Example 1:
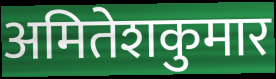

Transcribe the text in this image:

अमितेशकुमार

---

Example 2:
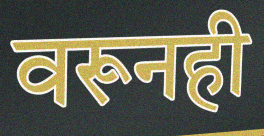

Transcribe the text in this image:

वरूनही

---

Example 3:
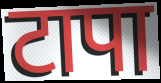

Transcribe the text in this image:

टापा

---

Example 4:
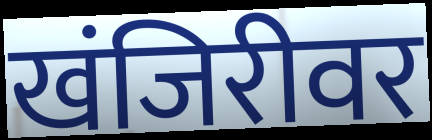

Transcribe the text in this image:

खंजिरीवर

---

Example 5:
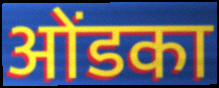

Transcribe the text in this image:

ओंडका